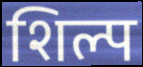
शिल्प